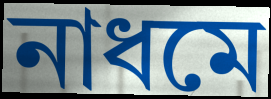
নাধমে